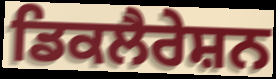
ਡਿਕਲੈਰੇਸ਼ਨ